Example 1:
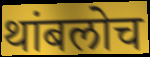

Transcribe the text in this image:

थांबलोच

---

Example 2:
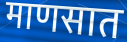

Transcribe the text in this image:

माणसात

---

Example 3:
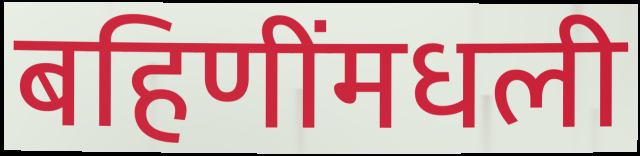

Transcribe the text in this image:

बहिणींमधली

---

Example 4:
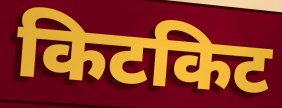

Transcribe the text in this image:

किटकिट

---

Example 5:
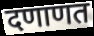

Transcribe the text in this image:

दणाणत